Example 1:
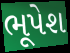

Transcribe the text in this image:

ભૂપેશ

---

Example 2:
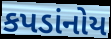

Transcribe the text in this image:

કપડાંનોય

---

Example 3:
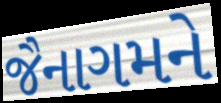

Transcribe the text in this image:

જૈનાગમને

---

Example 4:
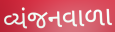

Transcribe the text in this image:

વ્યંજનવાળા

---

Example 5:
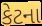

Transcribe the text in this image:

કેટના